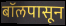
बॉलपासून